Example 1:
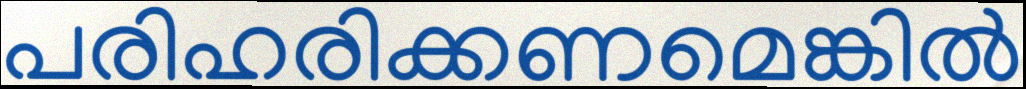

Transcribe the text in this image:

പരിഹരിക്കണമെങ്കിൽ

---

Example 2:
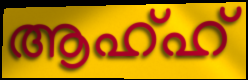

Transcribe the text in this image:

ആഹ്ഹ്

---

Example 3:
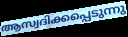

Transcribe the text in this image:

ആസ്വദിക്കപ്പെടുന്നു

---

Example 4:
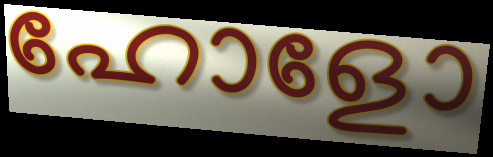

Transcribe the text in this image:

ഹോളോ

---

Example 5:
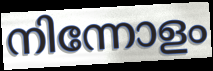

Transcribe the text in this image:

നിന്നോളം